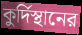
কুর্দিস্থানের